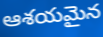
ఆశయమైన